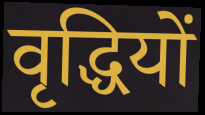
वृद्धियों